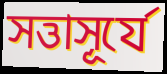
সত্তাসূর্যে